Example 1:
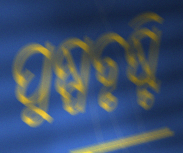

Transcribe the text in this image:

ପୁଷ୍ପବୃଷ୍ଟି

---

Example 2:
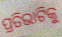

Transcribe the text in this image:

ପ୍ରତିଭାଟିକୁ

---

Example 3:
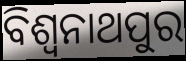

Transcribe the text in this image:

ବିଶ୍ଵନାଥପୁର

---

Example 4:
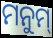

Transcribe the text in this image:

ମନୁମ୍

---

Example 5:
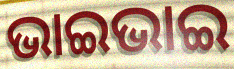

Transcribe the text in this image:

ଭାଇଭାଇ